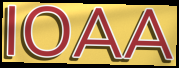
IOAA